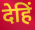
देहिं